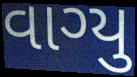
વાગ્યુ